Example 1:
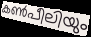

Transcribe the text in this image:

കൺപീലിയും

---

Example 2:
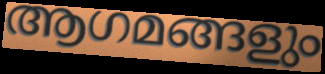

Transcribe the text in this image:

ആഗമങ്ങളും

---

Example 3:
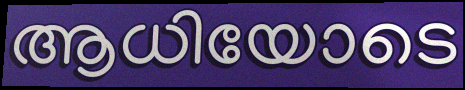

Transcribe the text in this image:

ആധിയോടെ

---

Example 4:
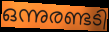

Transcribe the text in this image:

ഒന്നുരണ്ടടി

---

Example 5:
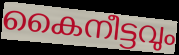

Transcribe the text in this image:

കൈനീട്ടവും